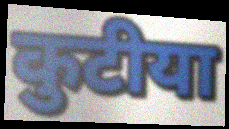
कुटीया